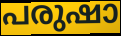
പരുഷാ